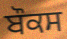
ਬੌਕਸ